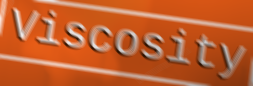
Viscosity